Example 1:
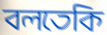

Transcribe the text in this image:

বলতেকি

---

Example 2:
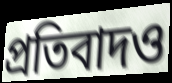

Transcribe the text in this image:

প্রতিবাদও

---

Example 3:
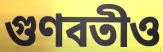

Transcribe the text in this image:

গুণবতীও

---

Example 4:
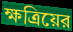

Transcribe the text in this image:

ক্ষত্রিয়ের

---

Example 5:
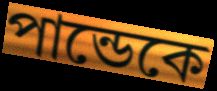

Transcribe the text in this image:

পান্ডেকে